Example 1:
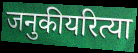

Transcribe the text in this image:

जनुकीयरित्या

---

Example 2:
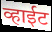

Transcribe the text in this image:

व्हाईट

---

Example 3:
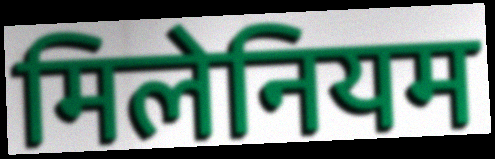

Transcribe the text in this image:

मिलेनियम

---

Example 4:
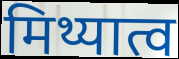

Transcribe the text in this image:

मिथ्यात्व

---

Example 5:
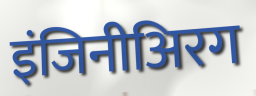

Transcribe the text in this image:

इंजिनीअिरग